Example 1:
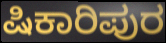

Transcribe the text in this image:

ಷಿಕಾರಿಪುರ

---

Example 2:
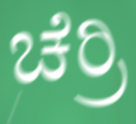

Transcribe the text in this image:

ಚೆರ್ರಿ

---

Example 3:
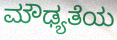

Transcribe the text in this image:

ಮೌಢ್ಯತೆಯ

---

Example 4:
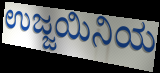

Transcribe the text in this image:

ಉಜ್ಜಯಿನಿಯ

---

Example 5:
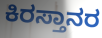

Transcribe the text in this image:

ಕಿರಸ್ತಾನರ